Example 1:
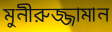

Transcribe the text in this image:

মুনীরুজ্জামান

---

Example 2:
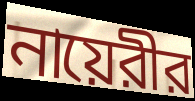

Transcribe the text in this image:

নায়েরীর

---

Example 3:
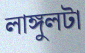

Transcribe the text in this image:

লাঙ্গুলটা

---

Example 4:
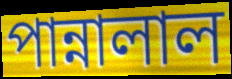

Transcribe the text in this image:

পান্নালাল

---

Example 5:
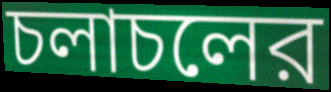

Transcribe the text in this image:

চলাচলের